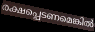
രക്ഷപ്പെടണമെങ്കിൽ